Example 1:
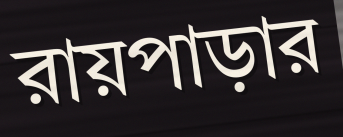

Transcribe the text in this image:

রায়পাড়ার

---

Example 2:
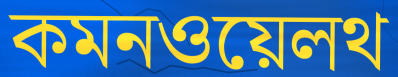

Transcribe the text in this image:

কমনওয়েলথ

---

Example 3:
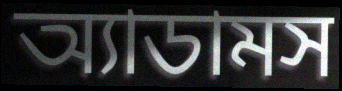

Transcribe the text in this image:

অ্যাডামস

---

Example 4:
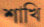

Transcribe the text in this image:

শাখি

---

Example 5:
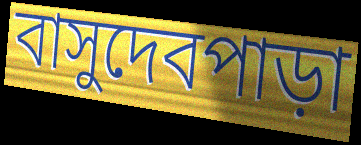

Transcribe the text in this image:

বাসুদেবপাড়া